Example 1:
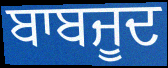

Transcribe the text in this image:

ਬਾਬਜੂਦ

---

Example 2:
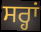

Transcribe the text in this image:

ਸਰ੍ਹਾਂ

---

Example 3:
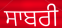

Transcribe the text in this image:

ਸਾਬਰੀ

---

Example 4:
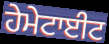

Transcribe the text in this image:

ਹੇਮੇਟਾਈਟ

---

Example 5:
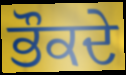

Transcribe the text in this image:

ਭੌਕਦੇ